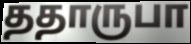
ததாருபா